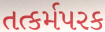
તત્કર્મપરક